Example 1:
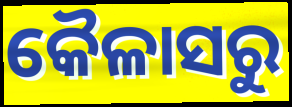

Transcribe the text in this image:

କୈଳାସରୁ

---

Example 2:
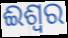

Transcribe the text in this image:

ଈଶ୍ଵର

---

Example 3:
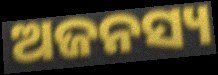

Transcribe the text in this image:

ଅଜନସ୍ୟ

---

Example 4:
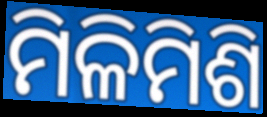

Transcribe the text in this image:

ମିଳିମିଶି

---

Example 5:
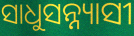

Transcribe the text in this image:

ସାଧୁସନ୍ନ୍ୟାସୀ